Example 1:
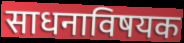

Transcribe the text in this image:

साधनाविषयक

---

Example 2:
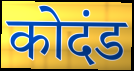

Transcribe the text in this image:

कोदंड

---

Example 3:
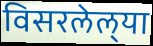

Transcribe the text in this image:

विसरलेल्या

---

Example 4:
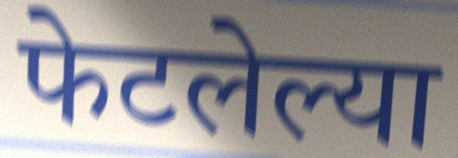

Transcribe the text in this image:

फेटलेल्या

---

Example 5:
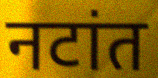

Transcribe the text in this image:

नटांत